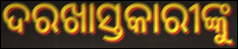
ଦରଖାସ୍ତକାରୀଙ୍କୁ